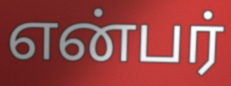
என்பர்